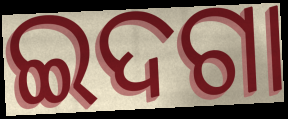
ଇଦଗା